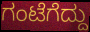
ಗಂಟೆಗೆದ್ದು